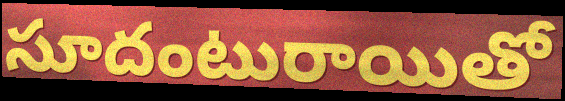
సూదంటురాయితో